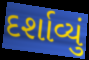
દર્શાવ્યું